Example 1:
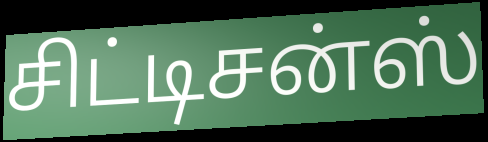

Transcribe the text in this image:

சிட்டிசன்ஸ்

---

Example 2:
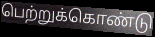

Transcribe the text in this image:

பெற்றுக்கொண்டு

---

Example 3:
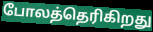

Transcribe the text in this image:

போலத்தெரிகிறது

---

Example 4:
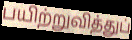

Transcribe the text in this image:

பயிற்றுவித்துப்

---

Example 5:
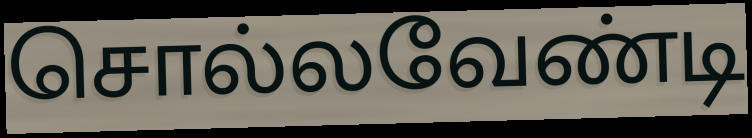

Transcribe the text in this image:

சொல்லவேண்டி